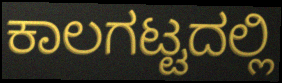
ಕಾಲಗಟ್ಟದಲ್ಲಿ